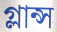
গ্লান্স